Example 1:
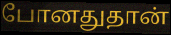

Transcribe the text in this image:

போனதுதான்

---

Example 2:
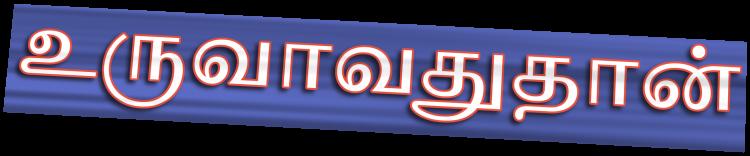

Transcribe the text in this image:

உருவாவதுதான்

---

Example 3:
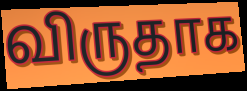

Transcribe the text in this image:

விருதாக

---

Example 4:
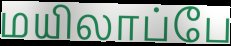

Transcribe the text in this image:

மயிலாப்பே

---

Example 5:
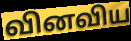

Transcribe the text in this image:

வினவிய